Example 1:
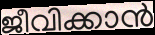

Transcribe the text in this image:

ജീവിക്കാൻ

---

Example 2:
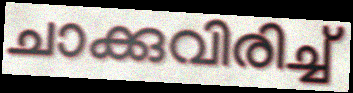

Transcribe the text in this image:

ചാക്കുവിരിച്ച്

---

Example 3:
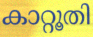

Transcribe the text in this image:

കാറ്റൂതി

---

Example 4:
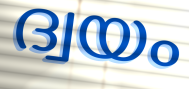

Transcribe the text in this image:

ദ്വയം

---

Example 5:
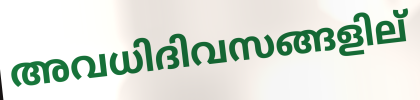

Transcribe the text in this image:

അവധിദിവസങ്ങളില്